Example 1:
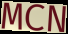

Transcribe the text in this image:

MCN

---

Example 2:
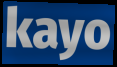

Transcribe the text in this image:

kayo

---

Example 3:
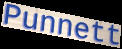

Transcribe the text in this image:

Punnett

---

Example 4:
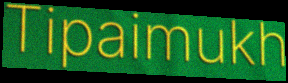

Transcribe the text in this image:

Tipaimukh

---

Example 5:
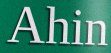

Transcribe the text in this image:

Ahin